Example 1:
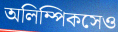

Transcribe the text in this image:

অলিম্পিকসেও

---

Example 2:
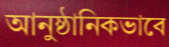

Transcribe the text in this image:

আনুষ্ঠানিকভাবে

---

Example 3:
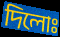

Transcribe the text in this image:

দিলোঃ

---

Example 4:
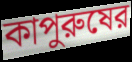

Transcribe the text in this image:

কাপুরুষের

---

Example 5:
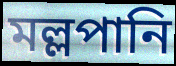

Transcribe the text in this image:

মল্লপানি